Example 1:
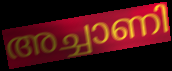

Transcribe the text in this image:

അച്ചാണി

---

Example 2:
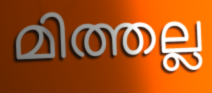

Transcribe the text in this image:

മിത്തല്ല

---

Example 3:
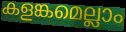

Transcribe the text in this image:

കളങ്കമെല്ലാം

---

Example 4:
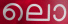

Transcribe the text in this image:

ലൊ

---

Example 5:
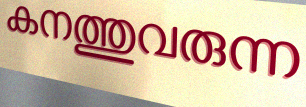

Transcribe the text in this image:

കനത്തുവരുന്ന